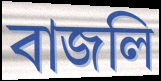
বাজলি